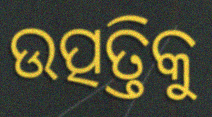
ଉତ୍ପତ୍ତିକୁ